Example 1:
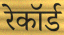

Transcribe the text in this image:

रेकॉर्ड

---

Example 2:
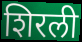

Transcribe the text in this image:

शिरली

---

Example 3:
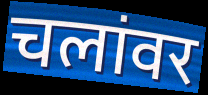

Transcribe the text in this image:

चलांवर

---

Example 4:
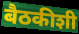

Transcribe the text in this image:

बैठकीशी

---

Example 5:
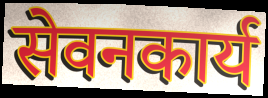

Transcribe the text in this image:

सेवनकार्य